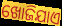
ଖୋଜିଯାଏ